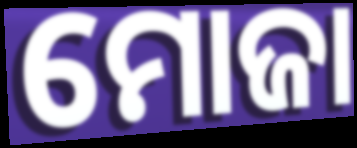
ମୋଜା